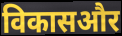
विकासऔर